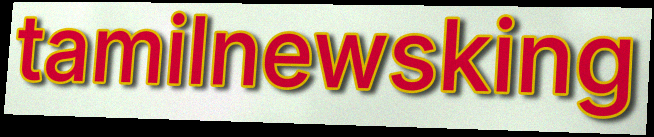
tamilnewsking